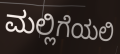
ಮಲ್ಲಿಗೆಯಲಿ